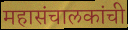
महासंचालकांची